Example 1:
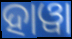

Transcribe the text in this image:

ହାୱା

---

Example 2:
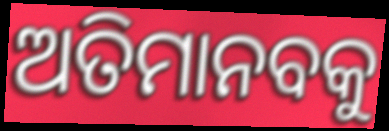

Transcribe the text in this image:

ଅତିମାନବକୁ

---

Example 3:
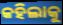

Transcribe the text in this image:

କହିଲାକୁ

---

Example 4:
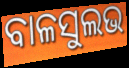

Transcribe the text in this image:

ବାଳସୁଲଭ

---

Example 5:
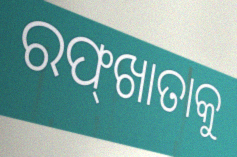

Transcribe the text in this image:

ରଫ୍‌ଖାତାକୁ